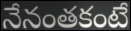
నేనంతకంటే